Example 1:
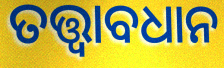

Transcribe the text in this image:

ତତ୍ତ୍ବାବଧାନ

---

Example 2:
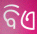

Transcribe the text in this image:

ବିଏ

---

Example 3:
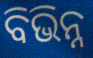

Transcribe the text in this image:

ବିଭିନ୍ନ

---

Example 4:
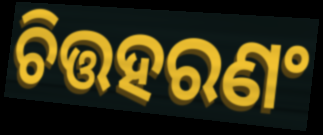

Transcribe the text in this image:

ଚିତ୍ତହରଣଂ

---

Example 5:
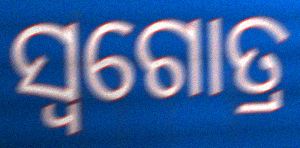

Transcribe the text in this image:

ସ୍ୱଗୋତ୍ର